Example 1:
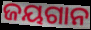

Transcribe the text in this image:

ଜୟଗାନ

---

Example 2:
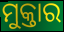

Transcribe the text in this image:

ମୁକ୍ତାର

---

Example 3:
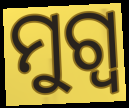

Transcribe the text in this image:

ମୁଗ୍ୱ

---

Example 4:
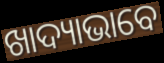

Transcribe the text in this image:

ଖାଦ୍ୟାଭାବେ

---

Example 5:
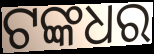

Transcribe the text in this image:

ଟଙ୍କଧର